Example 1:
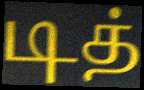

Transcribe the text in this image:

டித்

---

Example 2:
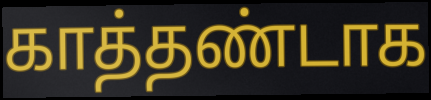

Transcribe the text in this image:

காத்தண்டாக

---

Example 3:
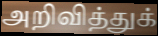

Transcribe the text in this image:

அறிவித்துக்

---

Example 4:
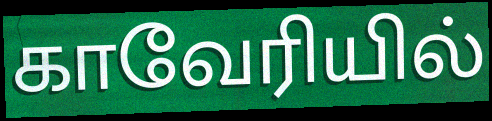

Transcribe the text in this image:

காவேரியில்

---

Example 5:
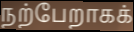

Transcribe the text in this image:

நற்பேறாகக்